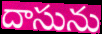
దాసును